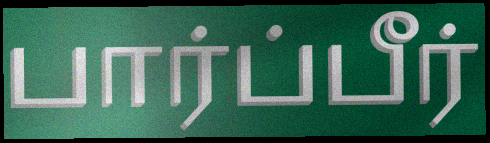
பார்ப்பீர்